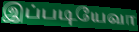
இப்படியேவா